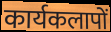
कार्यकलापों